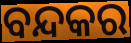
ବନ୍ଦକର